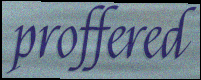
proffered